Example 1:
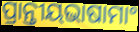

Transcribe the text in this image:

ପ୍ରାନ୍ତୀୟଭାଷାମାଂ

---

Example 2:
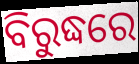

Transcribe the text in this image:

ବିରୁଦ୍ଧରେ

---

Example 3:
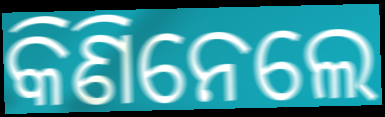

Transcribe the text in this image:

କିଣିନେଲେ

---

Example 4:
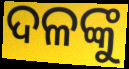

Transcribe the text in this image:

ଦଳଙ୍କୁ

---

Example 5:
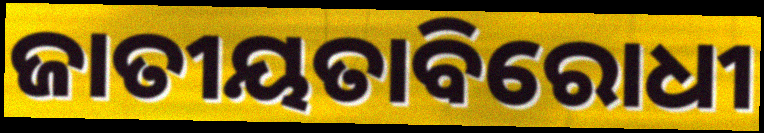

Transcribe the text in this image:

ଜାତୀୟତାବିରୋଧୀ